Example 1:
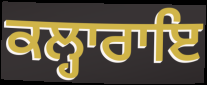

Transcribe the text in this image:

ਕਲ੍ਹਾਰਾਇ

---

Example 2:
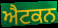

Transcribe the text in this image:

ਐਟਕਨ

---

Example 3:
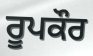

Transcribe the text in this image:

ਰੂਪਕੌਰ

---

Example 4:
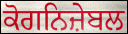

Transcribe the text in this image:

ਕੋਗਨਿਜ਼ੇਬਲ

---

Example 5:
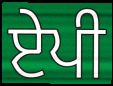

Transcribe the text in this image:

ਏਪੀ